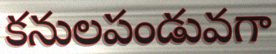
కనులపండువగా